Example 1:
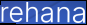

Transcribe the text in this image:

rehana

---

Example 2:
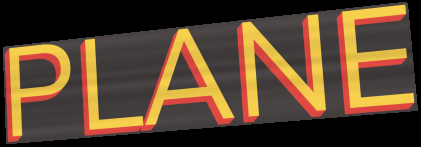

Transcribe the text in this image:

PLANE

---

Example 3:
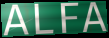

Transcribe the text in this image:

ALFA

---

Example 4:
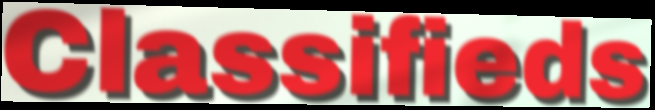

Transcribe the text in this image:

Classifieds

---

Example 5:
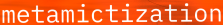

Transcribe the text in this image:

metamictization